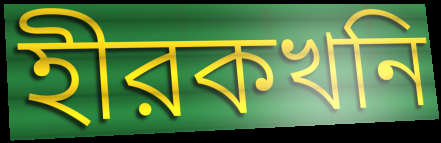
হীরকখনি